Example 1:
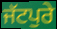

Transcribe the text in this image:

ਜੱਟਪੁਰੇ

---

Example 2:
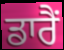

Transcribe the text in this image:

ਡਾਰੈਂ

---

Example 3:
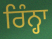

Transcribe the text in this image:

ਰਿੰਨ੍ਹਾ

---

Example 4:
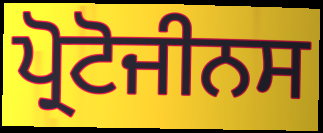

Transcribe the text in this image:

ਪ੍ਰੋਟੋਜੀਨਸ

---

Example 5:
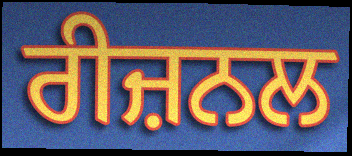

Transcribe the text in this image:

ਰੀਜ਼ਨਲ